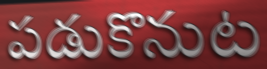
పడుకొనుట